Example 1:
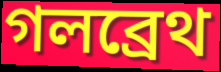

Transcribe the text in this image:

গলব্রেথ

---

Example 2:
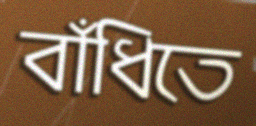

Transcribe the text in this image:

বাঁধিতে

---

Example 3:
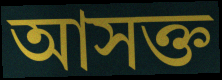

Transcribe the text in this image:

আসক্ত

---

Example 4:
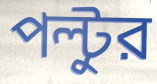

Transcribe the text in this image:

পল্টুর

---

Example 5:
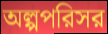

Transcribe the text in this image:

অল্পপরিসর